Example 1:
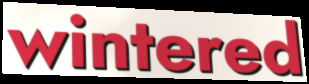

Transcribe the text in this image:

wintered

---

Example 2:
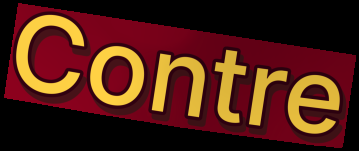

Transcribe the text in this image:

Contre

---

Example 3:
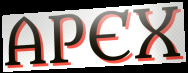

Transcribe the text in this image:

APEX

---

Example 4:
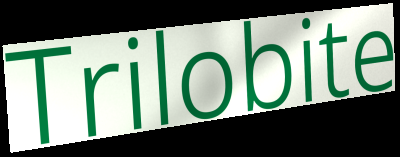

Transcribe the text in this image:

Trilobite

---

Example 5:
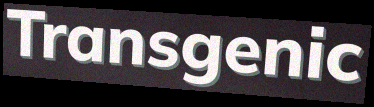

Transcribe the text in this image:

Transgenic